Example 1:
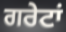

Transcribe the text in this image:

ਗਰੇਟਾਂ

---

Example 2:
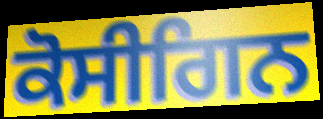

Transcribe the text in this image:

ਕੋਸੀਗਿਨ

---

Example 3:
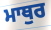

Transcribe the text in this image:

ਮਾਥੁਰ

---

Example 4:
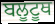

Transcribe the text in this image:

ਬਲੂਟੂਥ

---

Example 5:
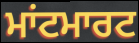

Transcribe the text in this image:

ਮਾਂਟਮਾਰਟ